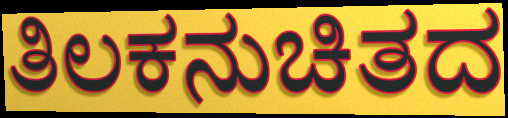
ತಿಲಕನುಚಿತದ